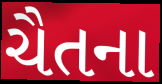
ચૈતના